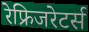
रेफ्रिजरेटर्स